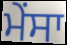
ਮੇਂਸਾ